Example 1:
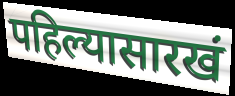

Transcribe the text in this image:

पहिल्यासारखं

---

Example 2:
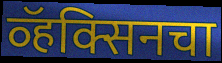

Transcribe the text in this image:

व्हॅक्सिनचा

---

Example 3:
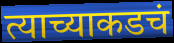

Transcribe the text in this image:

त्याच्याकडचं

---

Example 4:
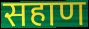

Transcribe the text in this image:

सहाण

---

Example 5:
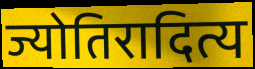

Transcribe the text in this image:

ज्योतिरादित्य